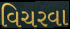
વિચરવા